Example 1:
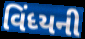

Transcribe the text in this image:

વિંધ્યની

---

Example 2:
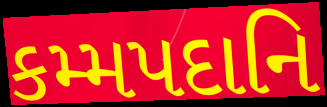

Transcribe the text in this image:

કમ્મપદાનિ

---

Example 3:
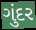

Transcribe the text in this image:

ગુંદર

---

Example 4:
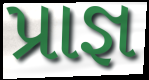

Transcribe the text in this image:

પ્રાજ્ઞ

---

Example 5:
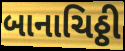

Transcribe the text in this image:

બાનાચિઠ્ઠી